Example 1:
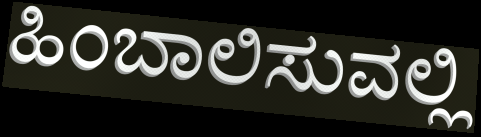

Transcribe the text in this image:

ಹಿಂಬಾಲಿಸುವಲ್ಲಿ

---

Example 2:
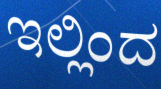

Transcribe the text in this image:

ಇಲ್ಲಿಂದ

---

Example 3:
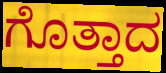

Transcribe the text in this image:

ಗೊತ್ತಾದ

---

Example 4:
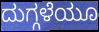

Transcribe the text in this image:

ದುಗ್ಗಳೆಯೂ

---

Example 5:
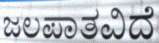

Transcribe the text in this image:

ಜಲಪಾತವಿದೆ